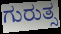
ಗುರುತ್ಸ